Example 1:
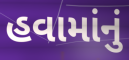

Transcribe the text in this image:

હવામાંનું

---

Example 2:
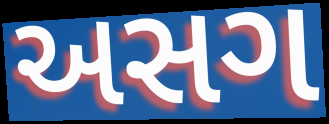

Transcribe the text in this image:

અસગ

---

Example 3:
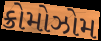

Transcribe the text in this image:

ક્રોમોઝોમ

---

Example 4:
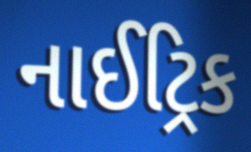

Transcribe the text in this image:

નાઈટ્રિક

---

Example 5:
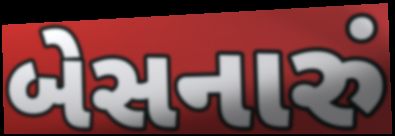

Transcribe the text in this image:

બેસનારું